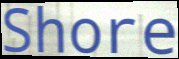
Shore